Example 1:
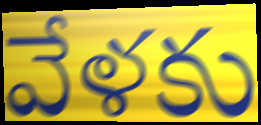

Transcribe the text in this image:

వేళకు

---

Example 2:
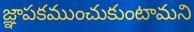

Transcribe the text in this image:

జ్ఞాపకముంచుకుంటామని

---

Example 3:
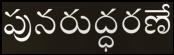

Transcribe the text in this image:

పునరుద్ధరణే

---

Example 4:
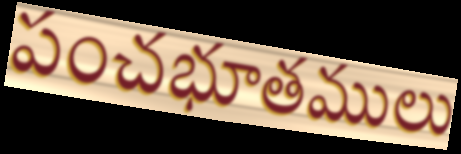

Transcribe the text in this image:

పంచభూతములు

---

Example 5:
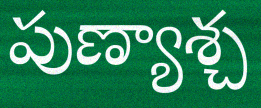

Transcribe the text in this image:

పుణ్యాశ్చ